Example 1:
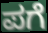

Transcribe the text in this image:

ಪಗೆ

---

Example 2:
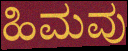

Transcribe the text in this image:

ಹಿಮವು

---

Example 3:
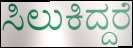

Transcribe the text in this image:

ಸಿಲುಕಿದ್ದರೆ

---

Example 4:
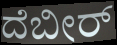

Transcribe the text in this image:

ದೆಬೀರ್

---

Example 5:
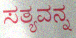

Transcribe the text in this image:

ಸತ್ಯವನ್ನ